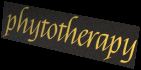
phytotherapy